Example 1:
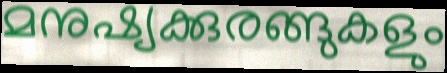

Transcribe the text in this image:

മനുഷ്യക്കുരങ്ങുകളും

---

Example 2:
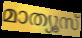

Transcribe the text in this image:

മാത്യൂസ്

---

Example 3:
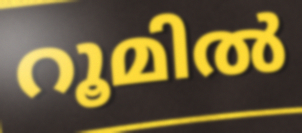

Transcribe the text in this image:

റൂമിൽ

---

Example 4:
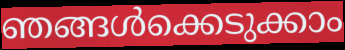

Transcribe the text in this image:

ഞങ്ങൾക്കെടുക്കാം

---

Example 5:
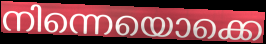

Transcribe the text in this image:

നിന്നെയൊക്കെ